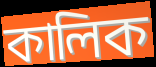
কালিক